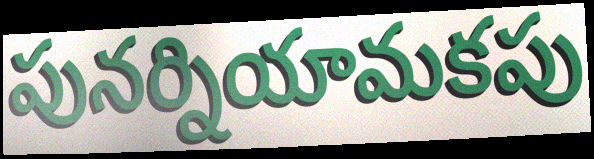
పునర్నియామకపు